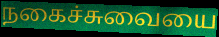
நகைச்சுவையை